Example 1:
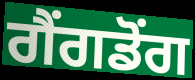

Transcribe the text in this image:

ਗੈਂਗਡੋਂਗ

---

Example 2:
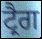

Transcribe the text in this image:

ਟ੍ਰੈਗ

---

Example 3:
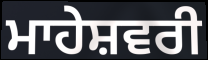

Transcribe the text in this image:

ਮਾਹੇਸ਼ਵਰੀ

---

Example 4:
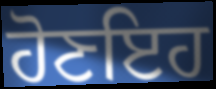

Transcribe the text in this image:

ਹੋਣਇਹ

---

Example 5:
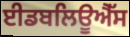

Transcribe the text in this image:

ਈਡਬਲਿਊਐੱਸ